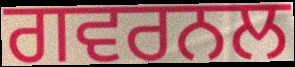
ਗਵਰਨਲ